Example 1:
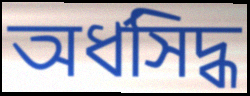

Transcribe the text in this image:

অর্ধসিদ্ধ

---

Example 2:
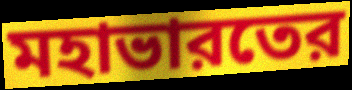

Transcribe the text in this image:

মহাভারতের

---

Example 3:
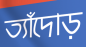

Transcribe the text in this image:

ত্যাঁদোড়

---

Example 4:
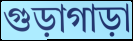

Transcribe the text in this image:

গুড়াগাড়া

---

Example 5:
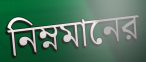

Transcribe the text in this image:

নিম্নমানের